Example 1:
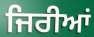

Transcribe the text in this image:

ਜਿਰੀਆਂ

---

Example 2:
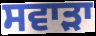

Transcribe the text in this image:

ਸਵਾੜਾ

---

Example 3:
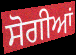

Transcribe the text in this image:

ਸੋਗੀਆਂ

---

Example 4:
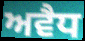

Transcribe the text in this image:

ਅਵੈਧ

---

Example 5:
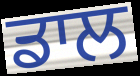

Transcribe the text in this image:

ਡਾਲ